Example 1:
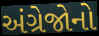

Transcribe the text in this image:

અંગ્રેજોનો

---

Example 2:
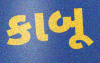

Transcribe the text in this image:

કાબૂ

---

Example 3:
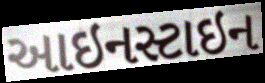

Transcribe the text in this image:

આઇનસ્ટાઇન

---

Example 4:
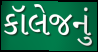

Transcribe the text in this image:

કૉલેજનું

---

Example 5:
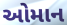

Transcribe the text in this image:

ઓમાન